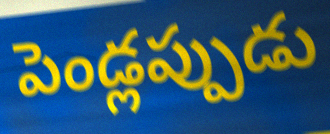
పెండ్లప్పుడు